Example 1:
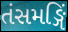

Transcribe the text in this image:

તંસમઙ્ગિં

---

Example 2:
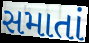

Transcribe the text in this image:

સમાતાં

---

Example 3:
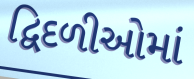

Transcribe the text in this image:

દ્વિદળીઓમાં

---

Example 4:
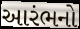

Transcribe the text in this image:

આરંભનો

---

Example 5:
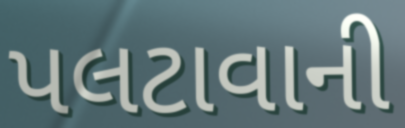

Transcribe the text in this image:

પલટાવાની